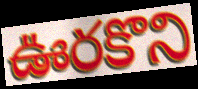
ఊరకొని